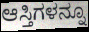
ಆಸ್ತಿಗಳನ್ನೂ